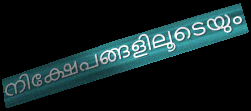
നിക്ഷേപങ്ങളിലൂടെയും